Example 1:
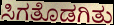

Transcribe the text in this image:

ಸಿಗತೊಡಗಿತು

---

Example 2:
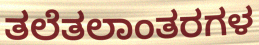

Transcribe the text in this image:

ತಲೆತಲಾಂತರಗಳ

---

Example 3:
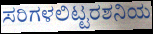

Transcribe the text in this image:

ಸರಿಗಳಲಿಟ್ಟರಶನಿಯ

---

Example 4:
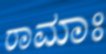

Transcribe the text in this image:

ರಾಮಾಃ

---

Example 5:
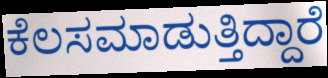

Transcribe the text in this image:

ಕೆಲಸಮಾಡುತ್ತಿದ್ದಾರೆ